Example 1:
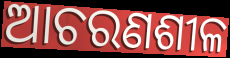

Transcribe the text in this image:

ଆଚରଣଶୀଳ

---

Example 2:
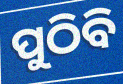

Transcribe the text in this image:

ପୁଠିବି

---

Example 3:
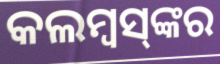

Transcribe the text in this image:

କଲମ୍ୱସ୍‌ଙ୍କର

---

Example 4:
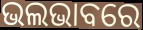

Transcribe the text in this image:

ଭଲଭାବରେ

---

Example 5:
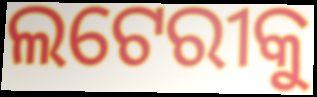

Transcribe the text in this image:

ଲଟେରୀକୁ